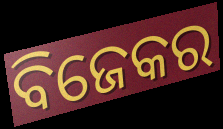
ବିଜେକର